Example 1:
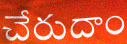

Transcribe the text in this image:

చేరుదాం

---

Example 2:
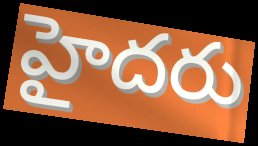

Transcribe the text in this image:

హైదరు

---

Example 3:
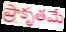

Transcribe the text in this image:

ప్రాకృతమే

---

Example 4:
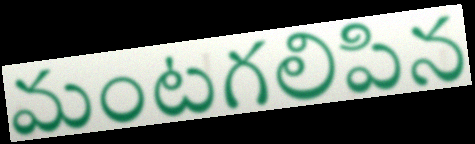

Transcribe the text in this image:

మంటగలిపిన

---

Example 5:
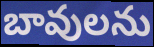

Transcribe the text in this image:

బావులను